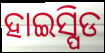
ହାଇସ୍ପିଡ